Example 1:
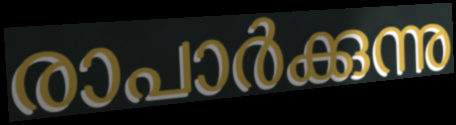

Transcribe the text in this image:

രാപാർക്കുന്നു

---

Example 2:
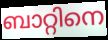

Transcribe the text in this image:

ബാറ്റിനെ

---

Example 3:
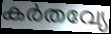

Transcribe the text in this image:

കർതവ്യേ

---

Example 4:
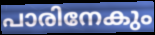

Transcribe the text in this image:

പാരിനേകും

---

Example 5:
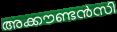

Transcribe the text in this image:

അക്കൗണ്ടൻസി